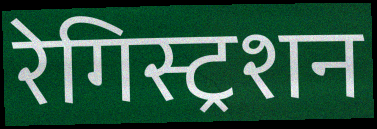
रेगिस्ट्रशन